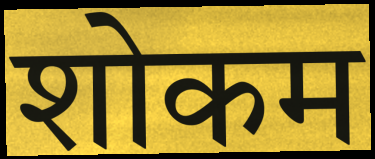
शोकम